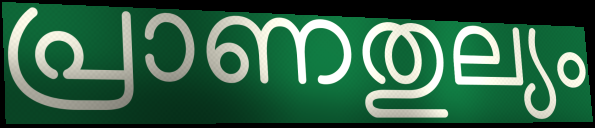
പ്രാണതുല്യം